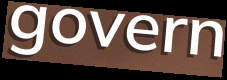
govern